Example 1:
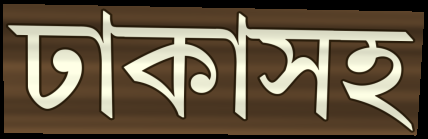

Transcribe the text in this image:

ঢাকাসহ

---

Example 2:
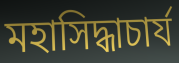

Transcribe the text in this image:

মহাসিদ্ধাচার্য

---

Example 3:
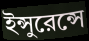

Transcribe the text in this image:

ইন্সুরেন্সে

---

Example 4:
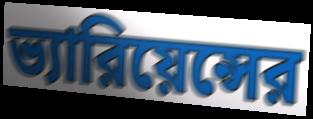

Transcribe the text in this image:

ভ্যারিয়েন্সের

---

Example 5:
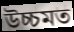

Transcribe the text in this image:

উচ্চমত